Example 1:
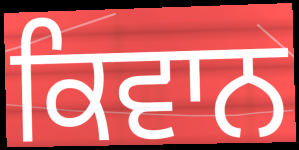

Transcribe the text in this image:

ਕਿਵਾਨ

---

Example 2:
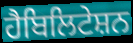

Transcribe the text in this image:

ਹੈਬਿਲਿਟੇਸ਼ਨ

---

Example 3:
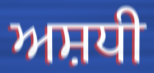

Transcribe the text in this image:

ਅਸ਼ਧੀ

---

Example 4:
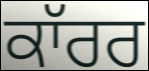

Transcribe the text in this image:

ਕਾੱਰਰ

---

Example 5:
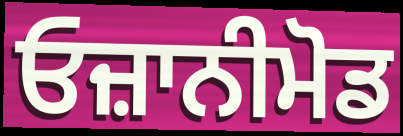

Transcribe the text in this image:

ਓਜ਼ਾਨੀਮੋਡ